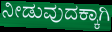
ನೀಡುವುದಕ್ಕಾಗಿ